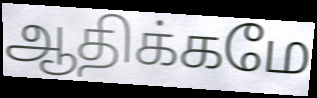
ஆதிக்கமே